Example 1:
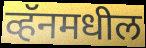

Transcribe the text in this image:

व्हॅनमधील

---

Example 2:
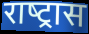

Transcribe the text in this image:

राष्ट्रास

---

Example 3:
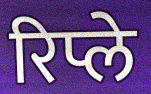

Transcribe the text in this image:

रिप्ले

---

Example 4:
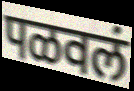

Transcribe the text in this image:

पळवलं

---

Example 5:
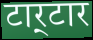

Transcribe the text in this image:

टार्टार